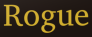
Rogue